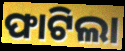
ଫାଟିଲା